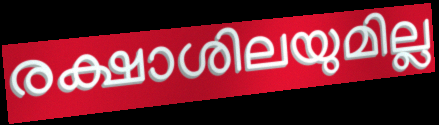
രക്ഷാശിലയുമില്ല